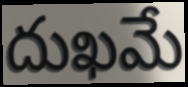
దుఖమే